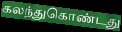
கலந்துகொண்டது